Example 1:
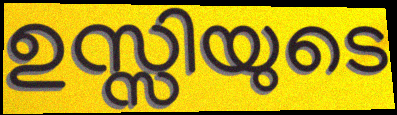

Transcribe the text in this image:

ഉസ്സിയുടെ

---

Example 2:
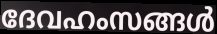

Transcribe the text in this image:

ദേവഹംസങ്ങൾ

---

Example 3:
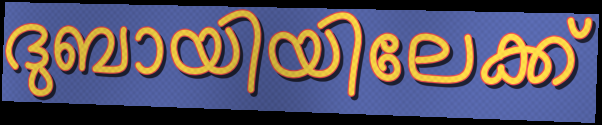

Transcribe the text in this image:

ദുബായിയിലേക്ക്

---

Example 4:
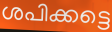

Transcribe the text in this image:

ശപിക്കട്ടെ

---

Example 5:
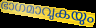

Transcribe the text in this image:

ഭാഗമാവുകയും